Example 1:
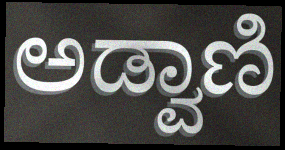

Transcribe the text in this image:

ಅಡ್ವಾಣಿ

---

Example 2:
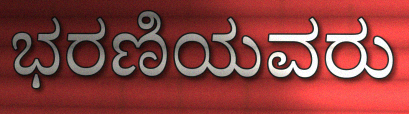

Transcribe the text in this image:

ಭರಣಿಯವರು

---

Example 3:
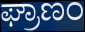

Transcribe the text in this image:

ಘ್ರಾಣಂ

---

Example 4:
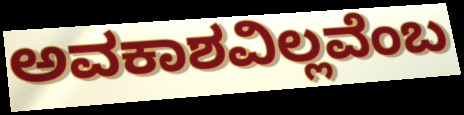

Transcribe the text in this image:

ಅವಕಾಶವಿಲ್ಲವೆಂಬ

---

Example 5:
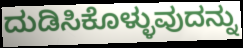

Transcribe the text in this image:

ದುಡಿಸಿಕೊಳ್ಳುವುದನ್ನು